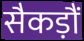
सैकड़ौं